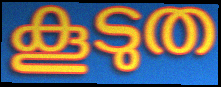
കൂടുത